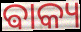
ଵାକ୍ୟ